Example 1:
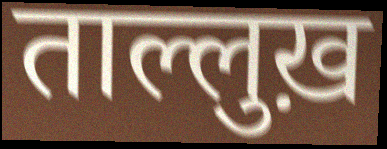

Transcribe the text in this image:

ताल्लुख़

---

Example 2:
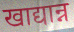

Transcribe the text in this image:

खाद्यान्न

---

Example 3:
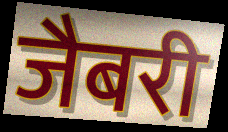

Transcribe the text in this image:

जैबरी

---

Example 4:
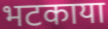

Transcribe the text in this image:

भटकाया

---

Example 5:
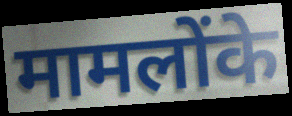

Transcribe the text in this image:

मामलोंके